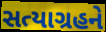
સત્યાગ્રહને